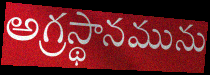
అగ్రస్థానమును